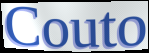
Couto